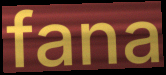
fana